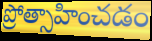
ప్రోత్సాహించడం